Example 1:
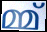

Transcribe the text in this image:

മ്മ്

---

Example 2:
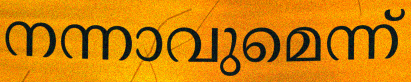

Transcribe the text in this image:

നന്നാവുമെന്ന്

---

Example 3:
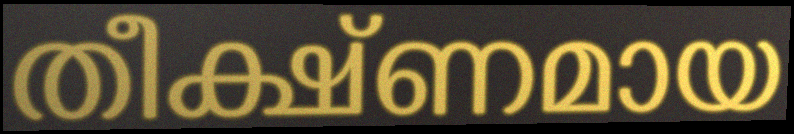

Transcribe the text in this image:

തീക്ഷ്‌ണമായ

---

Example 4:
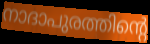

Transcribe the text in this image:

നാദാപുരത്തിന്റെ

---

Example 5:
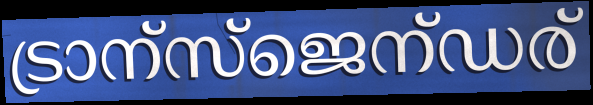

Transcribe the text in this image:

ട്രാന്സ്ജെന്ഡര്